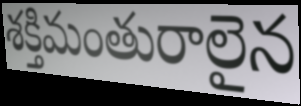
శక్తిమంతురాలైన